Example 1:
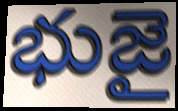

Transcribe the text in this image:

భుజై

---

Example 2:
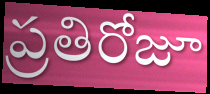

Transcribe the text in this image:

ప్రతిరోజూ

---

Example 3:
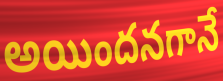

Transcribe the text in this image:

అయిందనగానే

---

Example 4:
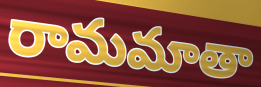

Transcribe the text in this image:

రామమాతా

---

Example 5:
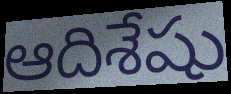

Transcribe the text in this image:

ఆదిశేషు